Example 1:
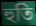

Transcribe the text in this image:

হুতি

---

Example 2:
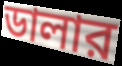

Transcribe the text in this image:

ডালার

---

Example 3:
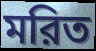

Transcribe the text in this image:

মরিত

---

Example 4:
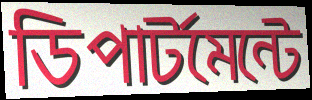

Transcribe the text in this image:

ডিপার্টমেন্টে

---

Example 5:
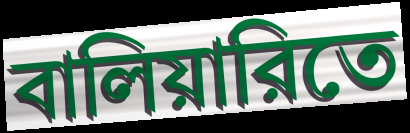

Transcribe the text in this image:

বালিয়ারিতে